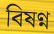
বিষণ্ন